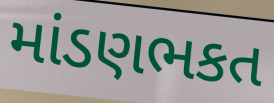
માંડણભકત